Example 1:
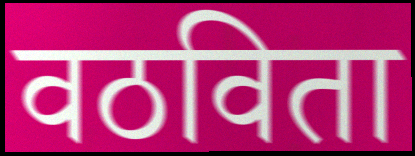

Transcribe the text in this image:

वठविता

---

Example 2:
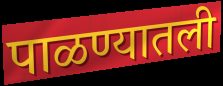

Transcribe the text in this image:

पाळण्यातली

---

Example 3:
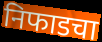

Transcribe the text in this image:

निफाडचा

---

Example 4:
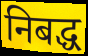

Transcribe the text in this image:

निबद्ध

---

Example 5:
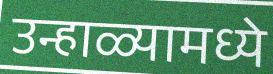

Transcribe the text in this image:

उन्हाळ्यामध्ये